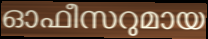
ഓഫീസറുമായ